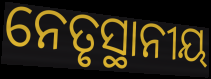
ନେତୃସ୍ଥାନୀୟ